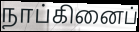
நாப்கினைப்